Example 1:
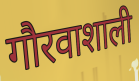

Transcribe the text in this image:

गौरवाशाली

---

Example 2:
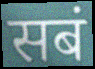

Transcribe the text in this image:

सबं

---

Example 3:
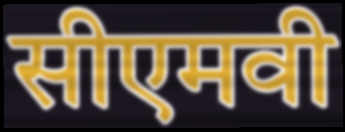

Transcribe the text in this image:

सीएमवी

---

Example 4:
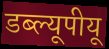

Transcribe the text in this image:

डब्ल्यूपीयू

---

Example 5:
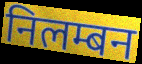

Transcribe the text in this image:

निलम्‍बन